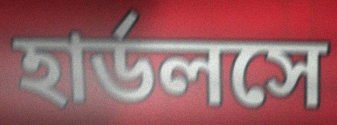
হার্ডলসে